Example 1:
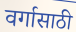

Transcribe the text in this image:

वर्गासाठी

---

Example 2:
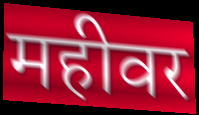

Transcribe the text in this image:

महीवर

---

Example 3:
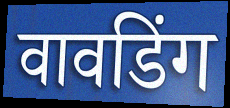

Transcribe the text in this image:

वावडिंग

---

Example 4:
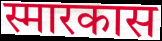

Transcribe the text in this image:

स्मारकास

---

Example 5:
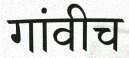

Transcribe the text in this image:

गांवीच